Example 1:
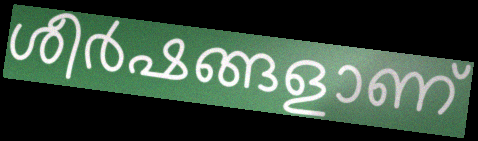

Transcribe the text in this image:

ശീർഷങ്ങളാണ്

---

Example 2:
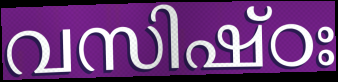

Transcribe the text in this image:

വസിഷ്ഠഃ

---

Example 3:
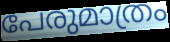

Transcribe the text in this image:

പേരുമാത്രം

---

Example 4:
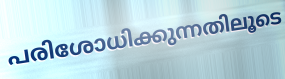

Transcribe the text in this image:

പരിശോധിക്കുന്നതിലൂടെ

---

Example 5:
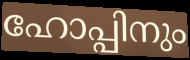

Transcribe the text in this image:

ഹോപ്പിനും